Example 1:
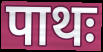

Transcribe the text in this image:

पाथः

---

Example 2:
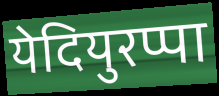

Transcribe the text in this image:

येदियुरप्पा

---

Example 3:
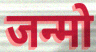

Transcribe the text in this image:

जन्मो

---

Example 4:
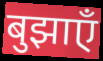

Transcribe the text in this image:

बुझाएँ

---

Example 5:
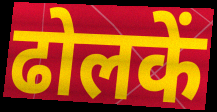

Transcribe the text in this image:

ढोलकें